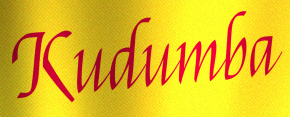
Kudumba